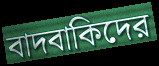
বাদবাকিদের